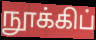
நூக்கிப்